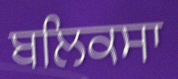
ਬਲਿਕਸਾ